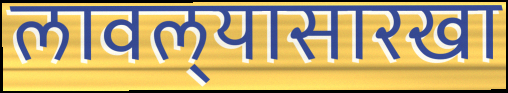
लावल्यासारखा